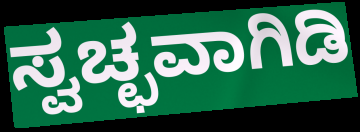
ಸ್ವಚ್ಛವಾಗಿಡಿ